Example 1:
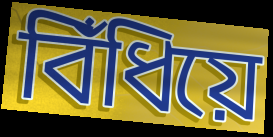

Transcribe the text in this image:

বিঁধিয়ে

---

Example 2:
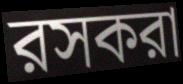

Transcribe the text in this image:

রসকরা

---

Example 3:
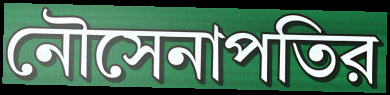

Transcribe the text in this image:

নৌসেনাপতির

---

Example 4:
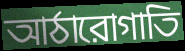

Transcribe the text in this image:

আঠারোগাতি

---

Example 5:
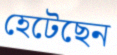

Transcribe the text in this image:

হেটেছেন